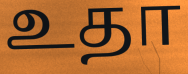
உதா